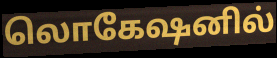
லொகேஷனில்